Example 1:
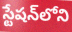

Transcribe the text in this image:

స్టేషన్‌లోని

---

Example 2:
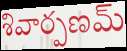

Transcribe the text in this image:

శివార్పణమ్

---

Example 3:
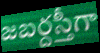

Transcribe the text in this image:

జబర్దస్తీగా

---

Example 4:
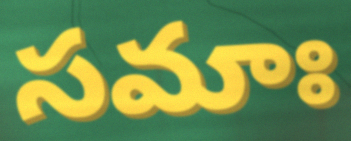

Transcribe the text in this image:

సమాః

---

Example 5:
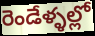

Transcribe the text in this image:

రెండేళ్ళల్లో